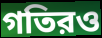
গতিরও